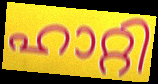
ഹാറ്റി